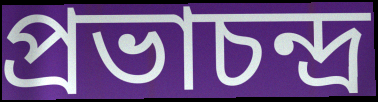
প্রভাচন্দ্র